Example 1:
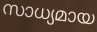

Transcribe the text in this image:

സാധ്യമായ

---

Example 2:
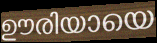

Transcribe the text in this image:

ഊരിയായെ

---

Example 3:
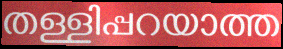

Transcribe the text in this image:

തള്ളിപ്പറയാത്ത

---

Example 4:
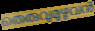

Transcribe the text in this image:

തെരുവുമുഴുവൻ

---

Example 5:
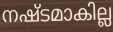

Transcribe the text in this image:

നഷ്ടമാകില്ല